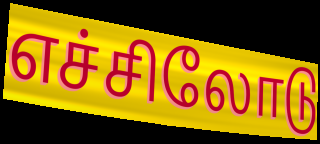
எச்சிலோடு